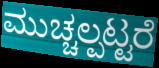
ಮುಚ್ಚಲ್ಪಟ್ಟರೆ